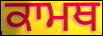
ਕਾਮਥ